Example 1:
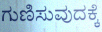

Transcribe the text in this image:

ಗುಣಿಸುವುದಕ್ಕೆ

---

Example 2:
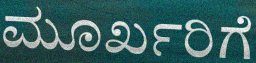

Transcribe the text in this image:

ಮೂರ್ಖರಿಗೆ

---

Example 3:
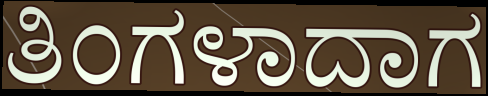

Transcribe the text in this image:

ತಿಂಗಳಾದಾಗ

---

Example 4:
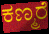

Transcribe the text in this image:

ಕಣ್ಮರೆ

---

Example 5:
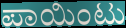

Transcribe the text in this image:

ಪಾಯಿಂಟು